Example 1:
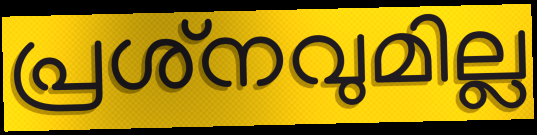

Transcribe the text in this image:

പ്രശ്‌നവുമില്ല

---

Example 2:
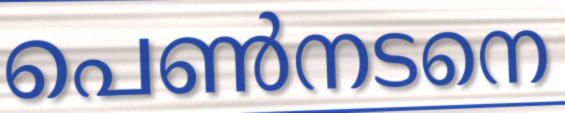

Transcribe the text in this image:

പെൺനടനെ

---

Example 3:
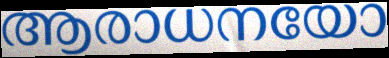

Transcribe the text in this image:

ആരാധനയോ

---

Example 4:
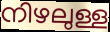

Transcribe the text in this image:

നിഴലുള്ള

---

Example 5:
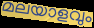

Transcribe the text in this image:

മലയാളവും